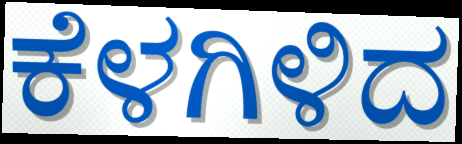
ಕೆಳಗಿಳಿದ